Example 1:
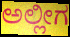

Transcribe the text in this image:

ಅಲ್ಲೀಗ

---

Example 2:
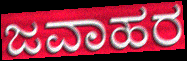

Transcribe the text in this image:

ಜವಾಹರ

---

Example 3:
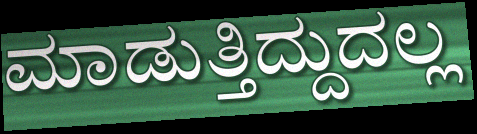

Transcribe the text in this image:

ಮಾಡುತ್ತಿದ್ದುದಲ್ಲ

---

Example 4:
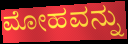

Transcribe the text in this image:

ಮೋಹವನ್ನು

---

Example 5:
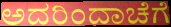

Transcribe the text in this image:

ಅದರಿಂದಾಚೆಗೆ